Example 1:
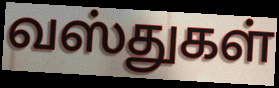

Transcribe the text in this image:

வஸ்துகள்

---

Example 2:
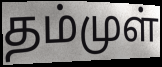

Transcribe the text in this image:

தம்முள்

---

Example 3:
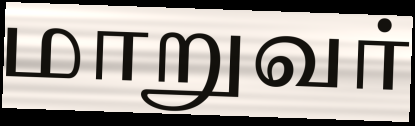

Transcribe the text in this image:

மாறுவர்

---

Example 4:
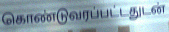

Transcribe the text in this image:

கொண்டுவரப்பட்டதுடன்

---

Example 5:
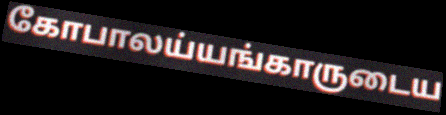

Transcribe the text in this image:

கோபாலய்யங்காருடைய